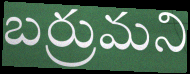
బర్రుమని